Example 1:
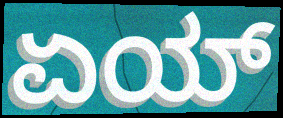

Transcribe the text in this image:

ಏಯ್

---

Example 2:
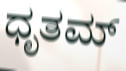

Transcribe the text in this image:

ಧೃತಮ್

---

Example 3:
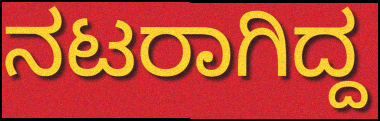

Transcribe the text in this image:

ನಟರಾಗಿದ್ದ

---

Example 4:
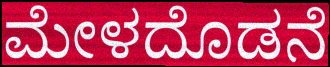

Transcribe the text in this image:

ಮೇಳದೊಡನೆ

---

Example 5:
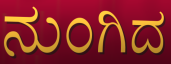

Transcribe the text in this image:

ನುಂಗಿದ